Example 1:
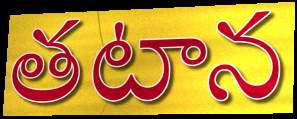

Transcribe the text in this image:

తటాన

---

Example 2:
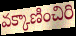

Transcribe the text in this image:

వక్కాణించిరి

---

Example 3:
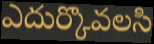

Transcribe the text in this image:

ఎదుర్కొవలసి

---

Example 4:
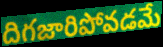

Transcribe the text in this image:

దిగజారిపోవడమే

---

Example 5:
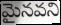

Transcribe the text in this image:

మైనవని